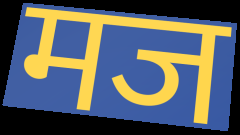
मज